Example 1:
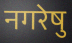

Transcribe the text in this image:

नगरेषु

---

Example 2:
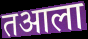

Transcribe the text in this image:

तआला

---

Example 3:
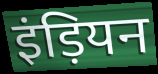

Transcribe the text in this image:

इंड़ियन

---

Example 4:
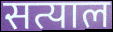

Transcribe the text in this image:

सत्याल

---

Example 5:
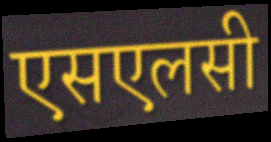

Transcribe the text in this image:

एसएलसी